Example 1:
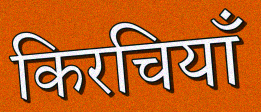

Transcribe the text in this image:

किरचियाँ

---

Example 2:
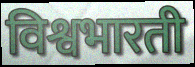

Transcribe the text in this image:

विश्वभारती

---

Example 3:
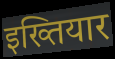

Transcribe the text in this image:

इख्तियार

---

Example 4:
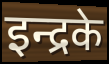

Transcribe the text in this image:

इन्द्रके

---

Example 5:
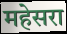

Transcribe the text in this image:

महेसरा